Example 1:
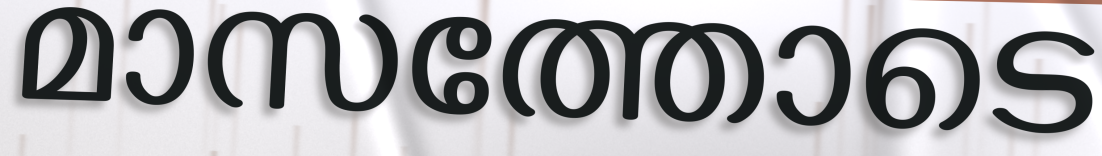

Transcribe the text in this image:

മാസത്തോടെ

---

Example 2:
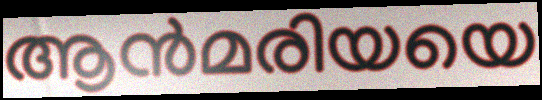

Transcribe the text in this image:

ആൻമരിയയെ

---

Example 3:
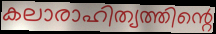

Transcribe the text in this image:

കലാരാഹിത്യത്തിന്റെ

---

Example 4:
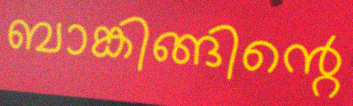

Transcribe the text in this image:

ബാങ്കിങ്ങിന്റെ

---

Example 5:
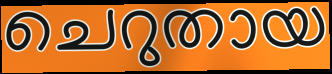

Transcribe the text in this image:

ചെറുതായ